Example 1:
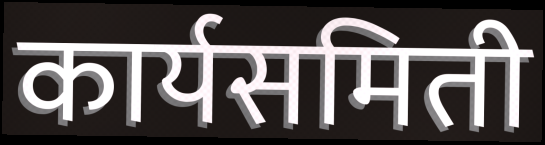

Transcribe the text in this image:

कार्यसमिती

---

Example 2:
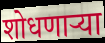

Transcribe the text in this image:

शोधणाऱ्या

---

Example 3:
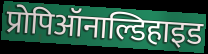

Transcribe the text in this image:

प्रोपिऑनाल्डिहाइड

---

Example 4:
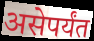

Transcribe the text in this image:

असेपर्यंत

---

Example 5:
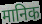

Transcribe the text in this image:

मानिक